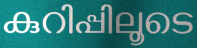
കുറിപ്പിലൂടെ